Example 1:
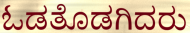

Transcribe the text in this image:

ಓಡತೊಡಗಿದರು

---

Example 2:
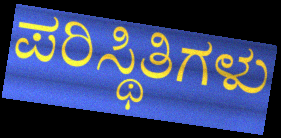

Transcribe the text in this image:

ಪರಿಸ್ಥಿತಿಗಳು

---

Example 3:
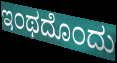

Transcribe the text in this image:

ಇಂಥದೊಂದು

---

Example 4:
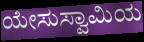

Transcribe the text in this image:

ಯೇಸುಸ್ವಾಮಿಯ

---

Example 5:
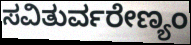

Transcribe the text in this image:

ಸವಿತುರ್ವರೇಣ್ಯಂ